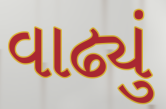
વાઢ્યું